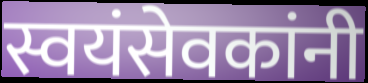
स्वयंसेवकांनी